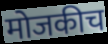
मोजकीच